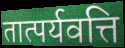
तात्पर्यवत्ति